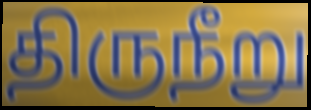
திருநீறு